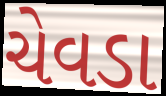
ચેવડા